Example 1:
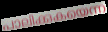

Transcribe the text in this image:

പാലിക്കുകയെന്ന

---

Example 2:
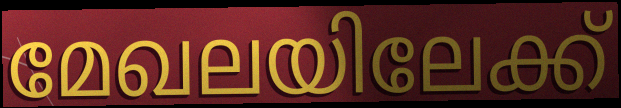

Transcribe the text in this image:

മേഖലയിലേക്ക്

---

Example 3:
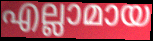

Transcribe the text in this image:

എല്ലാമായ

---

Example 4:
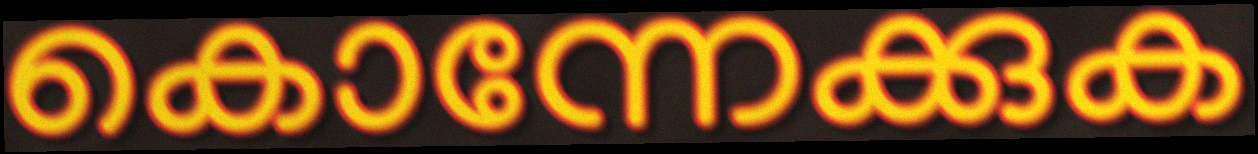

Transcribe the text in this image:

കൊന്നേക്കുക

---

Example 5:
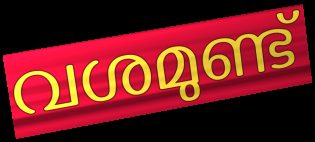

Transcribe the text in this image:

വശമുണ്ട്